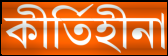
কীর্তিহীনা